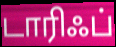
டாரிஃப்